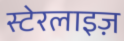
स्टेरलाइज़